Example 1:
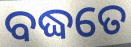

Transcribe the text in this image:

ବଦ୍ଧତେ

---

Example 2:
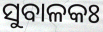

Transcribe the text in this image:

ସୁବାଳକଃ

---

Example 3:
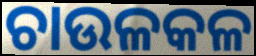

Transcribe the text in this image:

ଚାଉଳକଳ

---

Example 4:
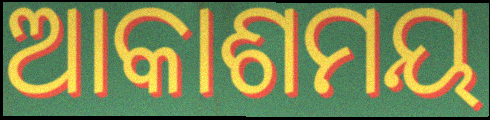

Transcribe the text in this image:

ଆକାଶମୟ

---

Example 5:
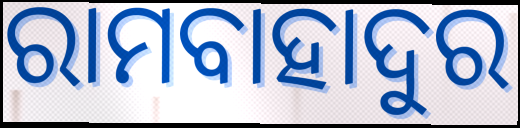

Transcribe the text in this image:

ରାମବାହାଦୁର